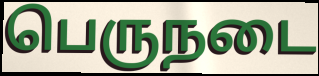
பெருநடை